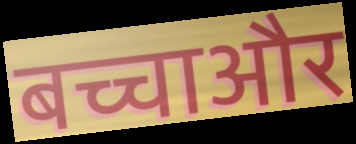
बच्चाऔर